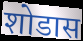
शोडास